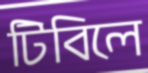
টিবিলে